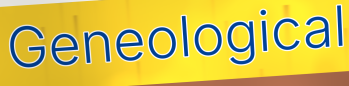
Geneological